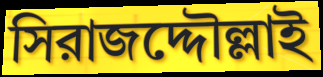
সিরাজদ্দৌল্লাই